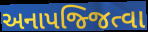
અનાપજ્જિત્વા